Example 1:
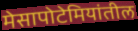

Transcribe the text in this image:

मेसापोटेमियांतील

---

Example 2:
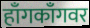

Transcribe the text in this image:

हाँगकाँगवर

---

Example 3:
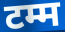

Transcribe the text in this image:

टम्म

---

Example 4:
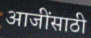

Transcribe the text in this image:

आजींसाठी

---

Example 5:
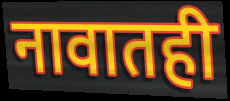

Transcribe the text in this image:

नावातही